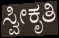
ಸ್ವೀಕೃತಿ